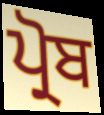
ਪ੍ਰੋਬ